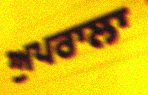
ਅੁਪਰਾਲਾ